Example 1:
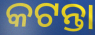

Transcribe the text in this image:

କଟନ୍ତା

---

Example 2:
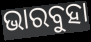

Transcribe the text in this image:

ଭାରବୁହା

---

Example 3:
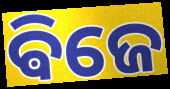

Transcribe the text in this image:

ଵିଜେ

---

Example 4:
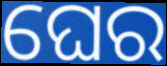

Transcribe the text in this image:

ଘେର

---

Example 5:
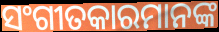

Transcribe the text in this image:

ସଂଗୀତକାରମାନଙ୍କ